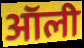
ऑली